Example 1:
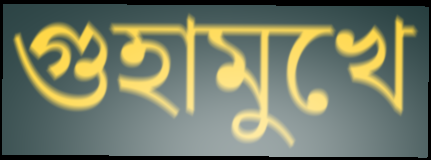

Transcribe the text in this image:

গুহামুখে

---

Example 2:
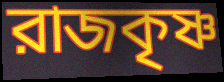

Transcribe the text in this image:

রাজকৃষ্ণ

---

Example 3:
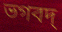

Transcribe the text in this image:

ভগবদ্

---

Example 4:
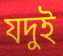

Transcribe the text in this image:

যদুই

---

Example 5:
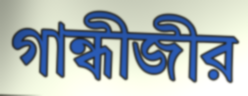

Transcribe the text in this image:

গান্ধীজীর